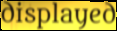
displayed